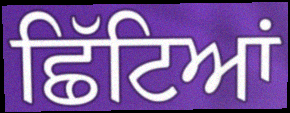
ਛਿੱਟਿਆਂ